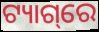
ଟ୍ୟାଗ୍‌ରେ